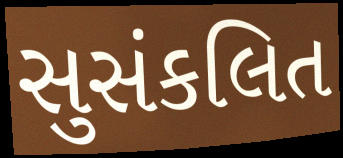
સુસંકલિત